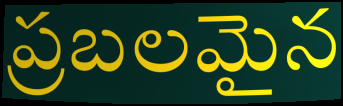
ప్రబలమైన